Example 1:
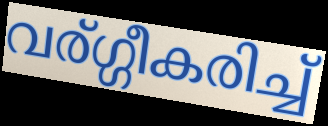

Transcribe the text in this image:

വര്ഗ്ഗീകരിച്ച്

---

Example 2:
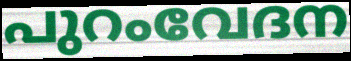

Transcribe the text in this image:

പുറംവേദന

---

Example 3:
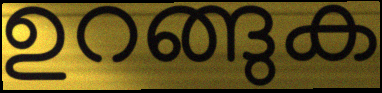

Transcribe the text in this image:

ഉറങ്ങുക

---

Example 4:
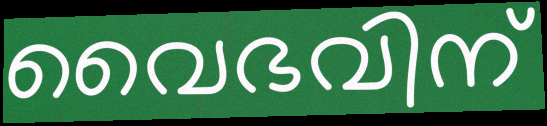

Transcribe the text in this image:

വൈഭവിന്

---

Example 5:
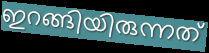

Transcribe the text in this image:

ഇറങ്ങിയിരുന്നത്